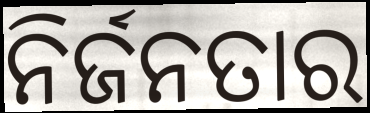
ନିର୍ଜନତାର